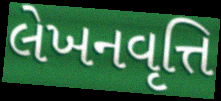
લેખનવૃત્તિ